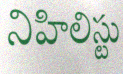
నిహిలిస్టు